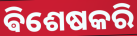
ଵିଶେଷକରି